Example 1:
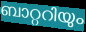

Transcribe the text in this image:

ബാറ്ററിയും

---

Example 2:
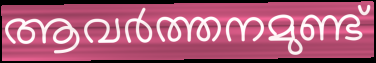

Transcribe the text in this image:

ആവർത്തനമുണ്ട്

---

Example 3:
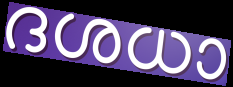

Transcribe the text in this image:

ദശധാ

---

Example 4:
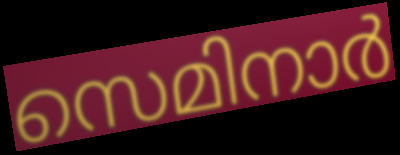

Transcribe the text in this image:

സെമിനാർ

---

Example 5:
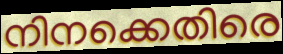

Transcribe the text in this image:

നിനക്കെതിരെ